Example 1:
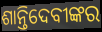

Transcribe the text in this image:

ଶାନ୍ତିଦେବୀଙ୍କର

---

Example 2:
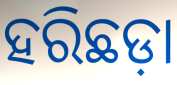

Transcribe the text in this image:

ହରିଛଡ଼ା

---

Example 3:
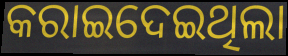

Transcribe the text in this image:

କରାଇଦେଇଥିଲା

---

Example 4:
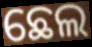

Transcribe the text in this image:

ଛେଲ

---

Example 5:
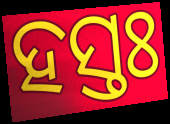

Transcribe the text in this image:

ହସ୍ତଃ